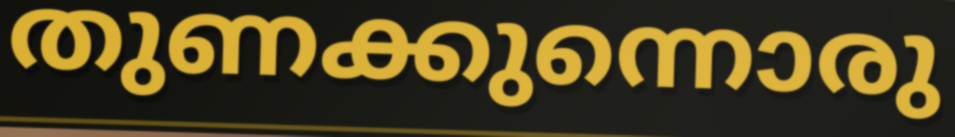
തുണക്കുന്നൊരു